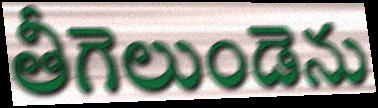
తీగెలుండెను